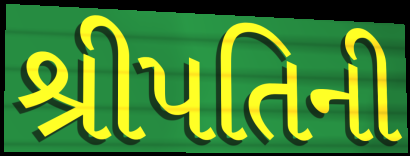
શ્રીપતિની